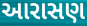
આરાસણ